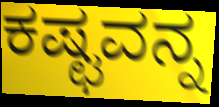
ಕಷ್ಟವನ್ನ